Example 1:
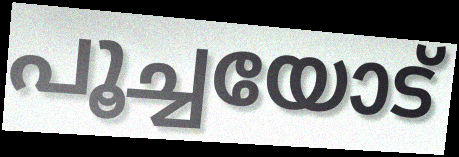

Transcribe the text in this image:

പൂച്ചയോട്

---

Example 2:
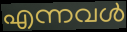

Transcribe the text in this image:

എന്നവൾ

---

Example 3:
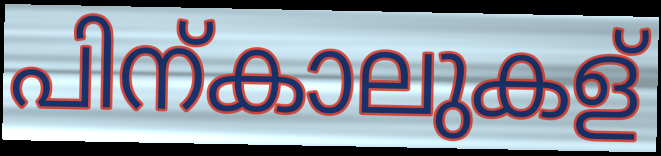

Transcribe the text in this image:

പിന്കാലുകള്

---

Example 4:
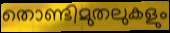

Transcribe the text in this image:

തൊണ്ടിമുതലുകളും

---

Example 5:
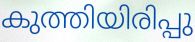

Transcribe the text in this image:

കുത്തിയിരിപ്പു